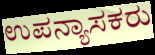
ಉಪನ್ಯಾಸಕರು